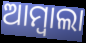
ଆମ୍ବାଲା